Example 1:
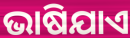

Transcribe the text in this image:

ଭାଷିଯାଏ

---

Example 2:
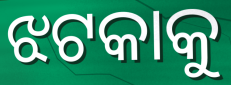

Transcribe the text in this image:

ଝଟକାକୁ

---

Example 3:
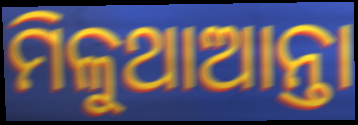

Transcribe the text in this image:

ମିଳୁଥାଆନ୍ତା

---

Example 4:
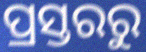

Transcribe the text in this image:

ପ୍ରସ୍ତରରୁ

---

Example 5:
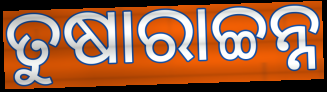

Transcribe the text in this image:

ତୁଷାରାଚ୍ଚନ୍ନ